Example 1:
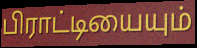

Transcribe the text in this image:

பிராட்டியையும்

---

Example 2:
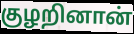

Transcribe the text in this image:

குழறினான்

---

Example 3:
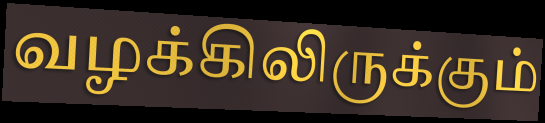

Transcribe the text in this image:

வழக்கிலிருக்கும்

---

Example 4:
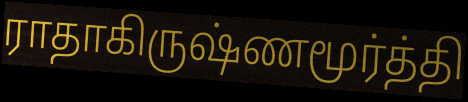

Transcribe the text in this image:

ராதாகிருஷ்ணமூர்த்தி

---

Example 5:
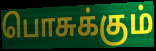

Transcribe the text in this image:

பொசுக்கும்